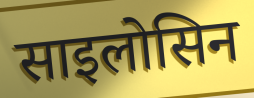
साइलोसिन